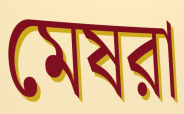
মেষরা